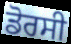
ਡੋਰਸੀ